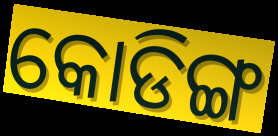
କୋଡିଙ୍ଗ